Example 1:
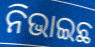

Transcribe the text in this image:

ନିଭାଇଛ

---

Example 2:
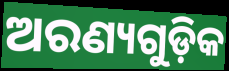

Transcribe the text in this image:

ଅରଣ୍ୟଗୁଡ଼ିକ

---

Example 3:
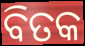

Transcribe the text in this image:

ବିତକ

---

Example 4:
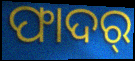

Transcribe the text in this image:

ଫାଦର୍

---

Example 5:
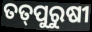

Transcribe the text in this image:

ତତ୍‌ପୁରୁଷୀ